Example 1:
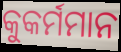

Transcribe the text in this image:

କୁକର୍ମମାନ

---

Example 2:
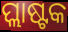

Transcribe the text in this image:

ପ୍ଲାଷ୍ଟକ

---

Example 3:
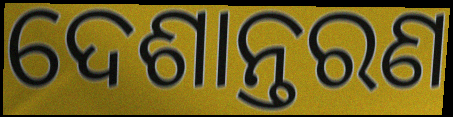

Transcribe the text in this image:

ଦେଶାନ୍ତରଣ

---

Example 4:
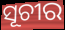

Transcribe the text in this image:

ସୂଚୀର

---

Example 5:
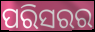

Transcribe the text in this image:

ପରିସରର